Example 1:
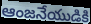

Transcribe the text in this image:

ఆంజనేయుడికి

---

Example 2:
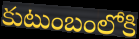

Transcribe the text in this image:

కుటుంబంలోకి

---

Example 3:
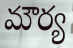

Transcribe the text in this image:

మౌర్య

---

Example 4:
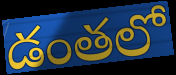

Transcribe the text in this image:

డంతలో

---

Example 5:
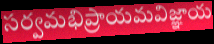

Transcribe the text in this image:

సర్వమభిప్రాయమవిజ్ఞాయ